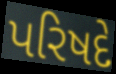
પરિષદે